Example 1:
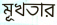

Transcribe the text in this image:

মূখতার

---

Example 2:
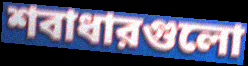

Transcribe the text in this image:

শবাধারগুলো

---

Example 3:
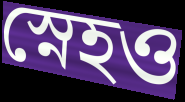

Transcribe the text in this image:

স্নেহও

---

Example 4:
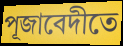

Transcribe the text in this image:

পূজাবেদীতে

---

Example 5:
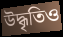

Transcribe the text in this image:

উদ্ধৃতিও